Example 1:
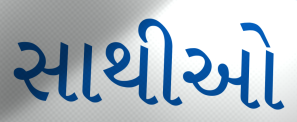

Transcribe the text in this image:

સાથીઓ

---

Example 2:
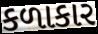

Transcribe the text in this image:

કળાકાર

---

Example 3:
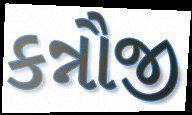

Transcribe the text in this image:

કન્નૌજી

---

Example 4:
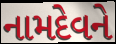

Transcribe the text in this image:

નામદેવને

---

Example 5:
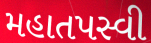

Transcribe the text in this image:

મહાતપસ્વી